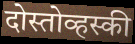
दोस्तोव्हस्की